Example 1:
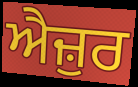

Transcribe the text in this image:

ਐਜ਼ੁਰ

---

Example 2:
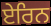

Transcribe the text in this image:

ਏਰਿਨ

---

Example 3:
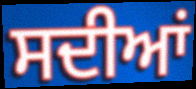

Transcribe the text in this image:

ਸਦੀਆਂ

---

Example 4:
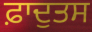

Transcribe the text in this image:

ਫ਼ਾਦੁਤਸ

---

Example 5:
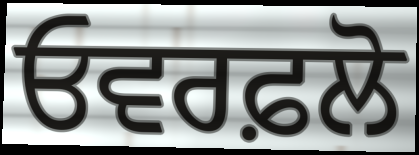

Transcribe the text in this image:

ਓਵਰਫ਼ਲੋ